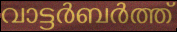
വാട്ടർബർത്ത്